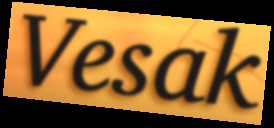
Vesak